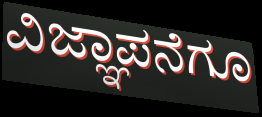
ವಿಜ್ಞಾಪನೆಗೂ